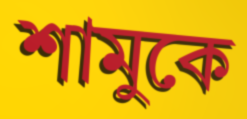
শামুকে